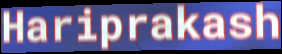
Hariprakash